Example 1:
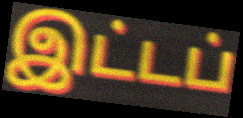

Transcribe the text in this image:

இட்டப்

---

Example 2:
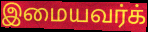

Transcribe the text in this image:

இமையவர்க்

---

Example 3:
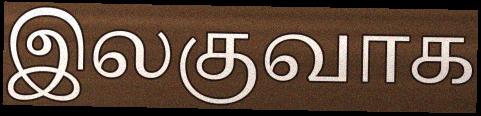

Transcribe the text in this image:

இலகுவாக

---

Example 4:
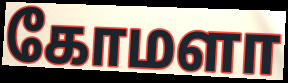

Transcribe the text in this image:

கோமளா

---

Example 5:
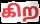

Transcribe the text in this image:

கிற